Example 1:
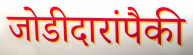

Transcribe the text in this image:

जोडीदारांपैकी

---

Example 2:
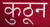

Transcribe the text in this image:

कुठून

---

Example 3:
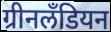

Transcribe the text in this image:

ग्रीनलॅंडियन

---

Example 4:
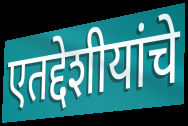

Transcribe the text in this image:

एतद्देशीयांचे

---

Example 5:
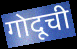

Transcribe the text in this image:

गोदूची